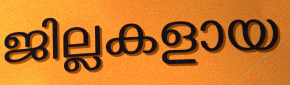
ജില്ലകളായ